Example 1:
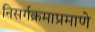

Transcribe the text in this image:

निसर्गक्रमाप्रमाणे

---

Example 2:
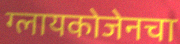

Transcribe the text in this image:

ग्लायकोजेनचा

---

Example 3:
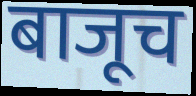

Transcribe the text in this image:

बाजूच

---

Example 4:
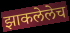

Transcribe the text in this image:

झाकलेलेच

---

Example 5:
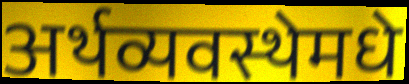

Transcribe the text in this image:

अर्थव्यवस्थेमधे